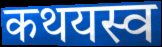
कथयस्व